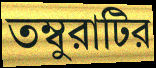
তম্বুরাটির